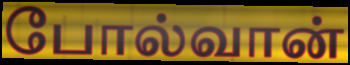
போல்வான்